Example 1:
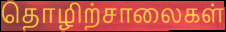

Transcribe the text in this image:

தொழிற்சாலைகள்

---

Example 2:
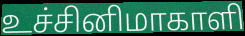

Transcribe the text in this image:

உச்சினிமாகாளி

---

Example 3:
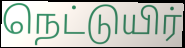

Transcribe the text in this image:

நெட்டுயிர்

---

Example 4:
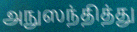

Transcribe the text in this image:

அநுஸந்தித்து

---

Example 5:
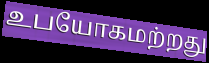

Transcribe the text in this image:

உபயோகமற்றது